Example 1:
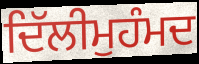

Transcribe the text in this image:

ਦਿੱਲੀਮੁਹੰਮਦ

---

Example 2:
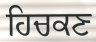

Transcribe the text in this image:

ਹਿਚਕਣ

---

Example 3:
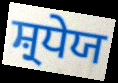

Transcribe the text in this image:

ਸ਼੍ਰਧੇਯ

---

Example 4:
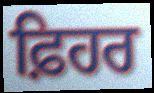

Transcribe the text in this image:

ਫ਼ਿਹਰ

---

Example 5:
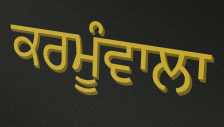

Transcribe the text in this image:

ਕਰਮੂੰਵਾਲਾ